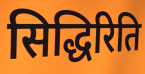
सिद्धिरिति